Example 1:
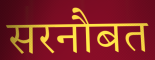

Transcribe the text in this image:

सरनौबत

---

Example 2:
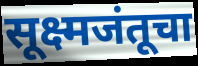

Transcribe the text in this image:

सूक्ष्मजंतूचा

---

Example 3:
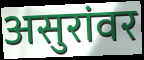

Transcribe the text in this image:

असुरांवर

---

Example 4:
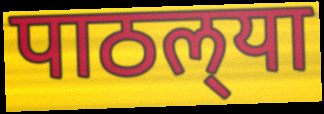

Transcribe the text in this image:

पाठल्या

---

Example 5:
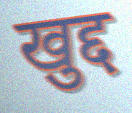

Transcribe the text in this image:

खुद्द